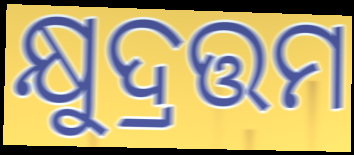
କ୍ଷୁଦ୍ରତ୍ତମ